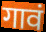
गावं